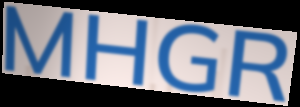
MHGR